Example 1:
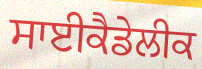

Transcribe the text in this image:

ਸਾਈਕੈਡੇਲੀਕ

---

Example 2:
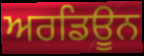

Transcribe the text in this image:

ਅਰਡਿਊਨ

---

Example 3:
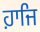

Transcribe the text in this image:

ਹ਼ਾਜਿ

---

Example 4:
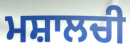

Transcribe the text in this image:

ਮਸ਼ਾਲਚੀ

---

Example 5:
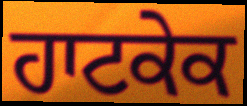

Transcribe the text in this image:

ਹਾਟਕੇਕ